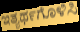
ಇತ್ಯರ್ಥಗೊಳಿಸಿ